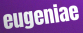
eugeniae